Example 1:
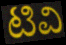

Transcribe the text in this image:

ಟಿವಿ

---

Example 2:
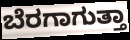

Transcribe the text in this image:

ಬೆರಗಾಗುತ್ತಾ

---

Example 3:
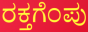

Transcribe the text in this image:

ರಕ್ತಗೆಂಪು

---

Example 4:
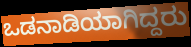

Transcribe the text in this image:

ಒಡನಾಡಿಯಾಗಿದ್ದರು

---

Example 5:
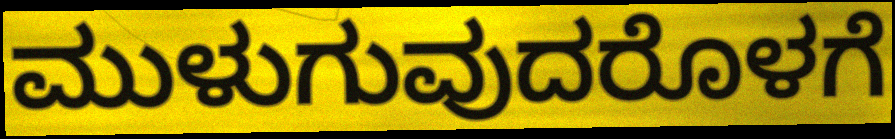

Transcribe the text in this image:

ಮುಳುಗುವುದರೊಳಗೆ